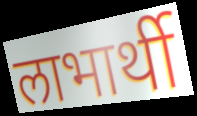
लाभार्थी